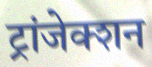
ट्रांजेक्शन